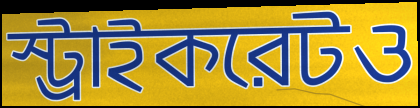
স্ট্রাইকরেটও